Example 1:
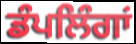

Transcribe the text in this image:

ਡੰਪਲਿੰਗਾਂ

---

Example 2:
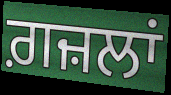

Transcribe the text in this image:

ਗ਼ਜ਼ਲਾਂ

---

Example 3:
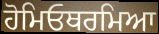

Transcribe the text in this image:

ਹੋਮਿਓਥਰਮਿਆ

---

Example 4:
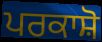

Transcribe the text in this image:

ਪਰਕਾਸ਼ੋ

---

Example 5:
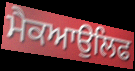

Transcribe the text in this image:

ਮੈਕਆਉਲਿਫ